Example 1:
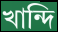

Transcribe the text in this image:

খান্দি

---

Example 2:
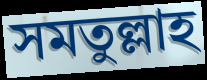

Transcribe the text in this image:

সমতুল্লাহ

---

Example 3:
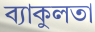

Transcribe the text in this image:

ব্যাকুলতা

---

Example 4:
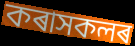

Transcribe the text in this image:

কৰাসকলৰ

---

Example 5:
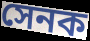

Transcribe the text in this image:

সেনক